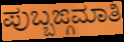
ಪುಬ್ಬಙ್ಗಮಾತಿ